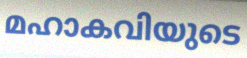
മഹാകവിയുടെ